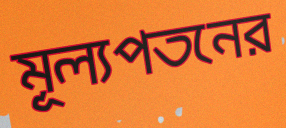
মূল্যপতনের